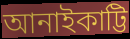
আনাইকাট্টি